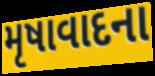
મૃષાવાદના